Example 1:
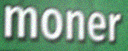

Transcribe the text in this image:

moner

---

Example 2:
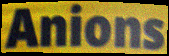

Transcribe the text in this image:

Anions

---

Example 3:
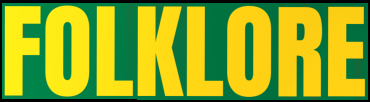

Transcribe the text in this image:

FOLKLORE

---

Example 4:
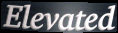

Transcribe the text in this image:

Elevated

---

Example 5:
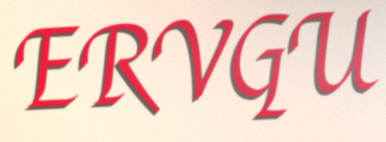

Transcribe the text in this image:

ERVGU